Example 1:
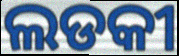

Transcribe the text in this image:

ଲଡକୀ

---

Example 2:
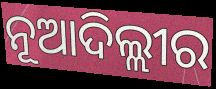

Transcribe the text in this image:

ନୂଆଦିଲ୍ଲୀର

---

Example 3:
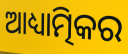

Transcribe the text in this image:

ଆଧ୍ୟାତ୍ମିକର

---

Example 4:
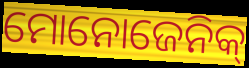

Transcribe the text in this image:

ମୋନୋଜେନିକ୍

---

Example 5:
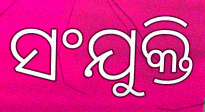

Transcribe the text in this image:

ସଂଯୁକ୍ତି